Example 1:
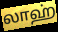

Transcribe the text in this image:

லாஹ்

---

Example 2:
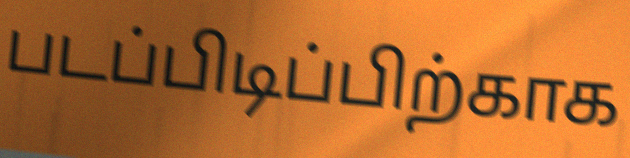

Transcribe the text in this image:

படப்பிடிப்பிற்காக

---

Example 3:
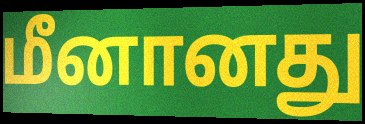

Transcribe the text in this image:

மீனானது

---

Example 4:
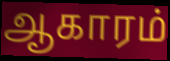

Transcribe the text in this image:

ஆகாரம்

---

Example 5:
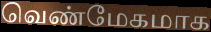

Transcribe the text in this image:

வெண்மேகமாக